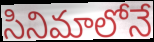
సినిమాలోనే